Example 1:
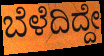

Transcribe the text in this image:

ಬೆಳೆದಿದ್ದೇ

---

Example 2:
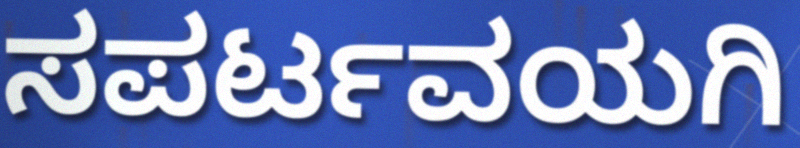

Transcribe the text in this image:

ಸಪರ್ಟವಯಗಿ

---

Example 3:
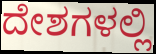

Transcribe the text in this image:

ದೇಶಗಳಲ್ಲಿ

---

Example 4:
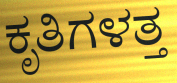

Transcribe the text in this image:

ಕೃತಿಗಳತ್ತ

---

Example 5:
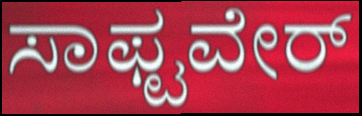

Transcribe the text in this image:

ಸಾಫ್ಟವೇರ್